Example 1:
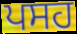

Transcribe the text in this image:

ਪਸਹ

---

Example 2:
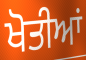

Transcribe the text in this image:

ਖੋਤੀਆਂ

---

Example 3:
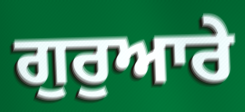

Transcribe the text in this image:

ਗੁਰੁਆਰੇ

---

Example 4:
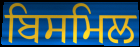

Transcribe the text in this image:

ਬਿਸਮਿਲ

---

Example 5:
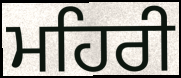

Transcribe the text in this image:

ਮਹਿਰੀ